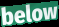
below